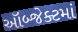
ઑબ્જેક્ટમાં